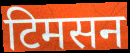
टिमसन